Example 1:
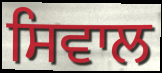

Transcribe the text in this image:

ਸਿਵਾਲ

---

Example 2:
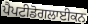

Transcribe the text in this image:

ਪੈਪਟੀਡੋਗਲਾਈਕਨ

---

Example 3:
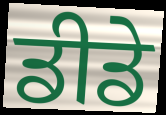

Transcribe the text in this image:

ਡੀਡੇ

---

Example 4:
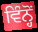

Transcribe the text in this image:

ਵਿੰਨ੍ਹੋਂ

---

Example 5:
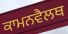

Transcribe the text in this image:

ਕਾਮਨਵੈਲਥ